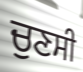
ਚੁਣਸੀ